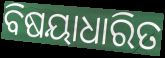
ବିଷୟାଧାରିତ